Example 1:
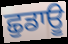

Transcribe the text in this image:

ਛੁਡਾਊ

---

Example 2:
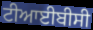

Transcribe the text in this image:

ਟੀਆਈਬੀਸੀ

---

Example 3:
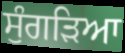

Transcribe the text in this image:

ਸੁੰਗੜਿਆ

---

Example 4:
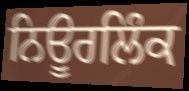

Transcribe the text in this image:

ਨਿਊਰਲਿੰਕ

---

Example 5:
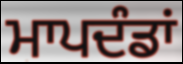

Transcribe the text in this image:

ਮਾਪਦੰਡਾਂ